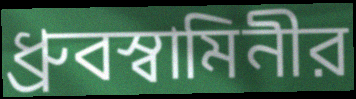
ধ্রুবস্বামিনীর